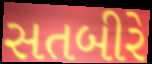
સતબીરે